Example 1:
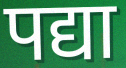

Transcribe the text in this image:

पद्या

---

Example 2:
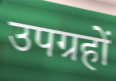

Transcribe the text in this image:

उपग्रहों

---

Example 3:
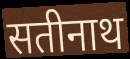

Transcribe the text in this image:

सतीनाथ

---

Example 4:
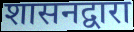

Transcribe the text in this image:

शासनद्वारा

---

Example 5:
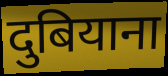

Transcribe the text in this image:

दुबियाना